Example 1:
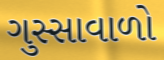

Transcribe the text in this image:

ગુસ્સાવાળો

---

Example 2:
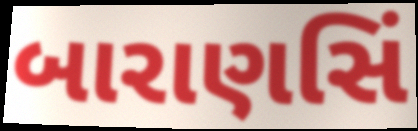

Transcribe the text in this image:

બારાણસિં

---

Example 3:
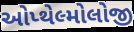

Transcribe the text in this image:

ઓપ્થેલ્મોલોજી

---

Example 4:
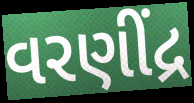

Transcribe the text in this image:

વરણીંદ્ર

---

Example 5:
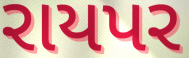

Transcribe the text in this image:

રાયપર